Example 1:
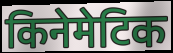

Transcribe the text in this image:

किनेमेटिक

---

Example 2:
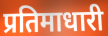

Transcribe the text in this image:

प्रतिमाधारी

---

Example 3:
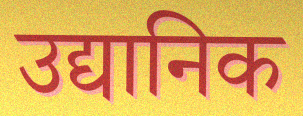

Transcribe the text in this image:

उद्यानिक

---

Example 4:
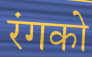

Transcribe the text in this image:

रंगको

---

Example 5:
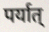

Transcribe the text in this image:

पर्यात्